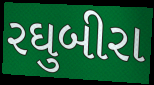
રઘુબીરા